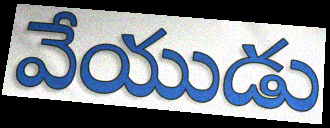
వేయుడు